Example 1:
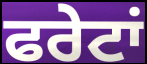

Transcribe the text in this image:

ਫਰੇਟਾਂ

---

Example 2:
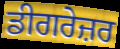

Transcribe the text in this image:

ਡੀਗਰੇਜ਼ਰ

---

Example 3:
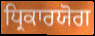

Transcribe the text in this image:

ਧ੍ਰਿਕਾਰਯੋਗ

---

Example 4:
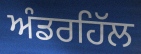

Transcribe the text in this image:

ਅੰਡਰਹਿੱਲ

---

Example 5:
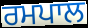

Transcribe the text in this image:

ਰਮਪਾਲ